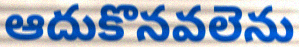
ఆదుకొనవలెను